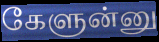
கேளுன்னு